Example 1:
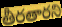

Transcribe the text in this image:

తీరతారని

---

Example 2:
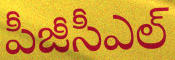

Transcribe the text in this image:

పీజీసీఎల్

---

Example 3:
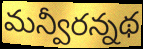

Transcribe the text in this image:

మన్వీరన్నథ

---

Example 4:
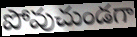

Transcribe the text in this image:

పోవుచుండగా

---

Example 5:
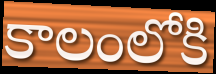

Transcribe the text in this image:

కాలంలోకి